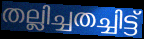
തല്ലിച്ചതച്ചിട്ട്